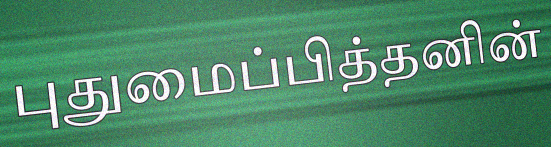
புதுமைப்பித்தனின்